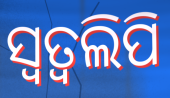
ସ୍ୱତ୍ୱଲିପି